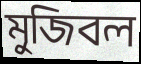
মুজিবল